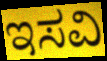
ಇಸವಿ